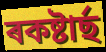
ৰকষ্টাৰ্ছ